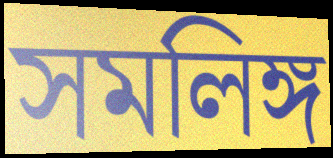
সমলিঙ্গ